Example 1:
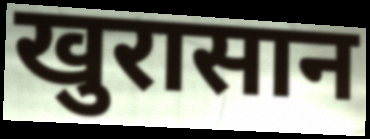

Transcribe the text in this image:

खुरासान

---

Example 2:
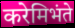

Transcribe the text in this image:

करेमिभंते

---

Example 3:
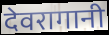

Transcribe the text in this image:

देवरागानी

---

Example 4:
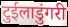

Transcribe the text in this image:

टुईलाडुंगरी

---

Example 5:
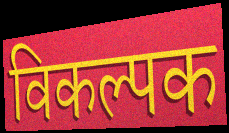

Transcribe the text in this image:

विकल्पक